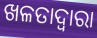
ଖଳତାଦ୍ଵାରା